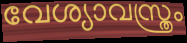
വേശ്യാവസ്ത്രം